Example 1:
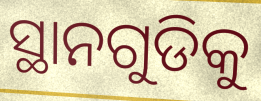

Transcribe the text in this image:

ସ୍ଥାନଗୁଡିକୁ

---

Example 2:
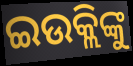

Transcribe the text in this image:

ଇଉକ୍ଲିଙ୍କୁ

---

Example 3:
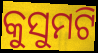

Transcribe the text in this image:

କୁସୁମଟି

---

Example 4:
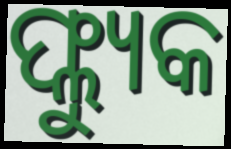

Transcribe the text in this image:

ଫ୍ଲ୍ୟୁକ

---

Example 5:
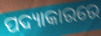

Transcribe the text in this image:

ପଦ୍ଯାକାରରେ